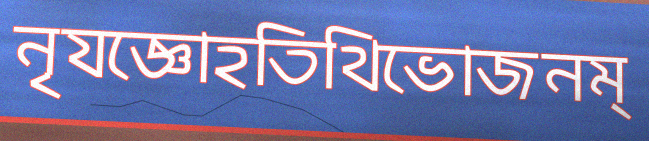
নৃযজ্ঞোহতিথিভোজনম্